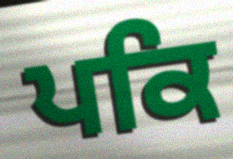
ਪਕਿ